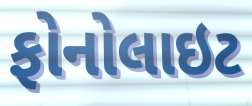
ફોનોલાઇટ